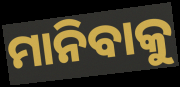
ମାନିବାକୁ